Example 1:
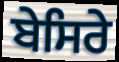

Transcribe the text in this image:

ਬੇਸਿਰੇ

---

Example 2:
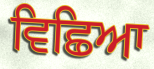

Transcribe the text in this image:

ਵਿਛਿਆ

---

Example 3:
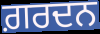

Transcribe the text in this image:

ਗ਼ਰਦਨ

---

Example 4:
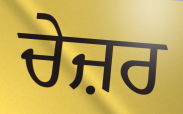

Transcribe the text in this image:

ਚੇਜ਼ਰ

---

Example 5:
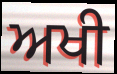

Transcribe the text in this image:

ਅਖੀ